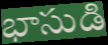
భాసుడి